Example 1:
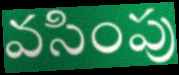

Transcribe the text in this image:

వసింపు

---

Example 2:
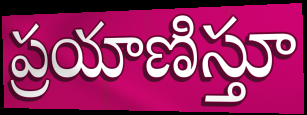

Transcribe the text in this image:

ప్రయాణిస్తూ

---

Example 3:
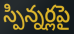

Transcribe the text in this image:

స్పిన్నర్లపై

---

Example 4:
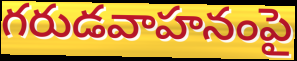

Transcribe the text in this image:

గరుడవాహనంపై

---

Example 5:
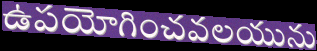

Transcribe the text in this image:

ఉపయోగించవలయును